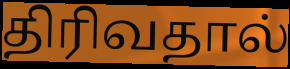
திரிவதால்